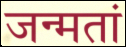
जन्मतां